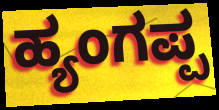
ಹ್ಯಂಗಪ್ಪ